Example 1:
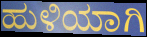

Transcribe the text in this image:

ಹುಳಿಯಾಗಿ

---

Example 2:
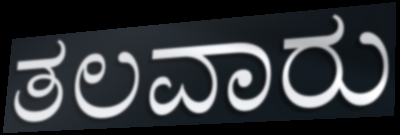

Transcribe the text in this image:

ತಲವಾರು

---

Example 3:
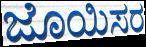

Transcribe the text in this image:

ಜೊಯಿಸರ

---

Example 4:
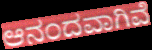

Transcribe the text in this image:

ಆನಂದವಾಗಿವೆ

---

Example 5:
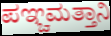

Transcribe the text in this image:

ಪಞ್ಚಮತ್ತಾನಿ